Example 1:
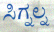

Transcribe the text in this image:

ಸಿಗ್ನಲ್ನ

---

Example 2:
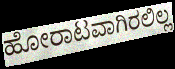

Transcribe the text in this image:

ಹೋರಾಟವಾಗಿರಲಿಲ್ಲ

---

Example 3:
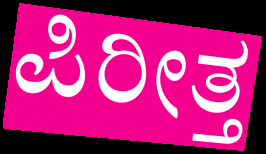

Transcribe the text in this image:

ಪಿರೀತ್ತ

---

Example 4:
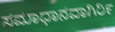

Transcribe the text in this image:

ಸಮಾಧಾನವಾಗಿರ್ರಿ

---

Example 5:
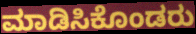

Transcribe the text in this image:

ಮಾಡಿಸಿಕೊಂಡರು